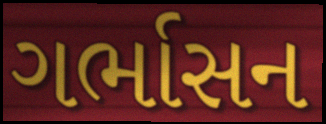
ગર્ભાસન